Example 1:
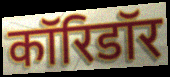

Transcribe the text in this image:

कॉरिडॉर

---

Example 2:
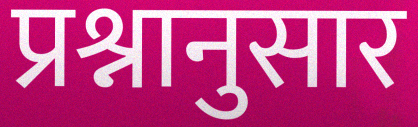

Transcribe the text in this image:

प्रश्नानुसार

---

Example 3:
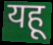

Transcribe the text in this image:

यहू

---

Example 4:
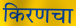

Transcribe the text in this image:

किरणचा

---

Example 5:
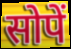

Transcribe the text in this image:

सोपें